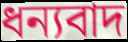
ধন্যবাদ